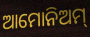
ଆମୋନିଅମ୍